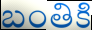
బంతికి